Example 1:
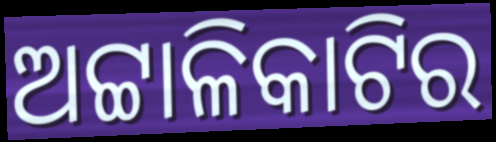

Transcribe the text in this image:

ଅଟ୍ଟାଳିକାଟିର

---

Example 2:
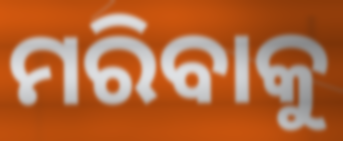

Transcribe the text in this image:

ମରିବାକୁ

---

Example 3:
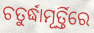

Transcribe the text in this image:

ଚତୁର୍ଦ୍ଧାମୂର୍ତ୍ତିରେ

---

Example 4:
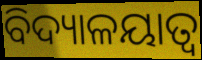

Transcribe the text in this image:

ବିଦ୍ୟାଳୟାତ୍ବ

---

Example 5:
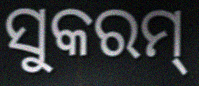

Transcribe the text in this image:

ସୁକରମ୍